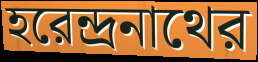
হরেন্দ্রনাথের